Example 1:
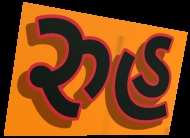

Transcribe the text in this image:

રુહ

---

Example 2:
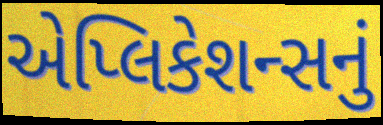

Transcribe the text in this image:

એપ્લિકેશન્સનું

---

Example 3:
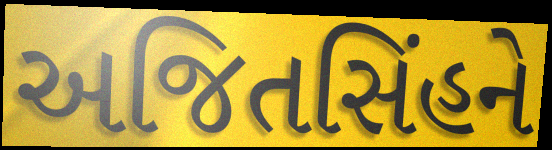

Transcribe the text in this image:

અજિતસિંહને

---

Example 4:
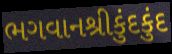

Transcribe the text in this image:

ભગવાનશ્રીકુંદકુંદ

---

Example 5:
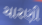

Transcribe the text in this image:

ચારણી